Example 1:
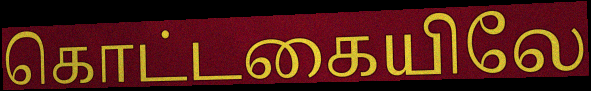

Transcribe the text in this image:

கொட்டகையிலே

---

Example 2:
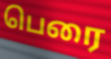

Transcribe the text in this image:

பெரை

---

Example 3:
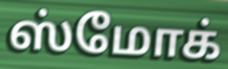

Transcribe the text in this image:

ஸ்மோக்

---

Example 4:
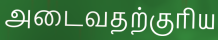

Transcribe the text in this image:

அடைவதற்குரிய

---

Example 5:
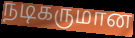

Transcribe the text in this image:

நடிகருமான